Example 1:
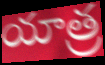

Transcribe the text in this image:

యాత్ర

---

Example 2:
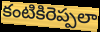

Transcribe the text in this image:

కంటికిరెప్పలా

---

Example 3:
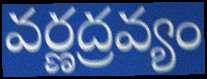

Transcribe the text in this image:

వర్ణద్రవ్యం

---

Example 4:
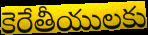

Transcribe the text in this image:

కెరేతీయులకు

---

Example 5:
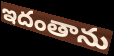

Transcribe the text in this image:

ఇదంతాను